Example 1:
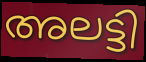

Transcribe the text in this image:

അലട്ടി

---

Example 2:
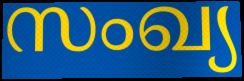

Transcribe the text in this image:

സംഖ്യ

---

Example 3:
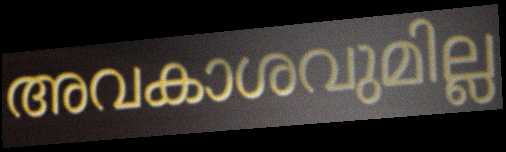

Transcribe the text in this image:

അവകാശവുമില്ല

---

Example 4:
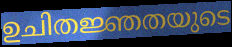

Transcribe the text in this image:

ഉചിതജ്ഞതയുടെ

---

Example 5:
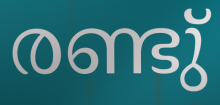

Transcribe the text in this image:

രണ്ടു്